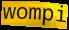
wompi